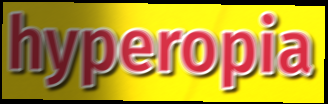
hyperopia